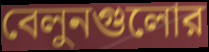
বেলুনগুলোর